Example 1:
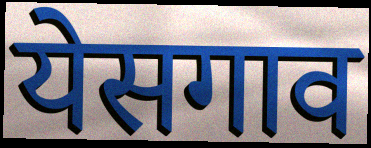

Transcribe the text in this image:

येसगाव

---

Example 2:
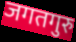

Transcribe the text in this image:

जगतगुरु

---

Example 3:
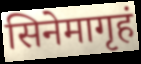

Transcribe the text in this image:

सिनेमागृहं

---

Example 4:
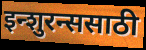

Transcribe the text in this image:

इन्शुरन्ससाठी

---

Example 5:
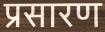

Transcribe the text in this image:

प्रसारण